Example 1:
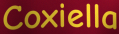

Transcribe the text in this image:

Coxiella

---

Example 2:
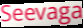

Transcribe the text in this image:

Seevaga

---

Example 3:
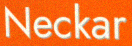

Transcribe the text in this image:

Neckar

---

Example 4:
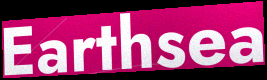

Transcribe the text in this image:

Earthsea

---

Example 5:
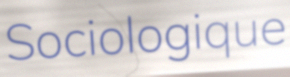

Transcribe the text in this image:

Sociologique